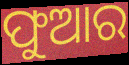
ଫୁଆର